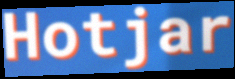
Hotjar